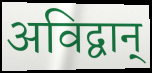
अविद्वान्